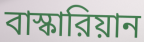
বাস্কারিয়ান